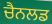
ਚੈਨਲਡ